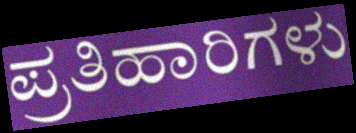
ಪ್ರತಿಹಾರಿಗಳು